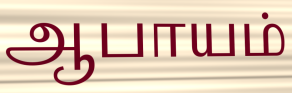
ஆபாயம்